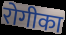
रोगीका